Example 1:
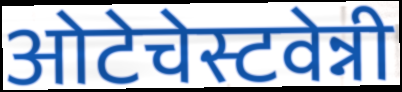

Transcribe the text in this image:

ओटेचेस्टवेन्नी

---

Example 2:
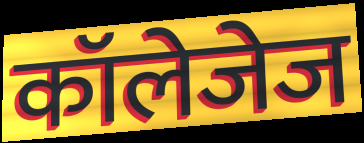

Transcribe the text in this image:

कॉलेजेज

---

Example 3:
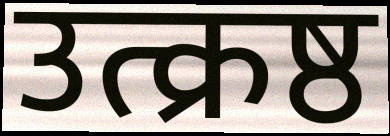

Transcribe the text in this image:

उत्क्रष्ठ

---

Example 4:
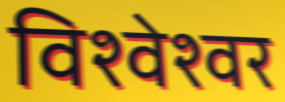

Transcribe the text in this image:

विश्वेश्वर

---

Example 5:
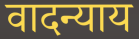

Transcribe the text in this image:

वादन्याय